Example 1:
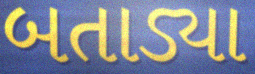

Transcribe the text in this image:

બતાડ્યા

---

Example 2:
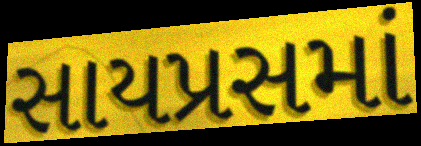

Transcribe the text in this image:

સાયપ્રસમાં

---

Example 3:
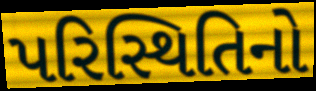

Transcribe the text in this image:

પરિસ્થિતિનો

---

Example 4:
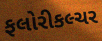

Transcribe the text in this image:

ફલોરીકલ્ચર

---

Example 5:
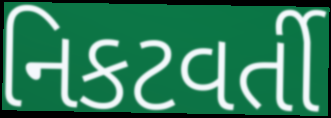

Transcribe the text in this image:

નિકટવર્તી